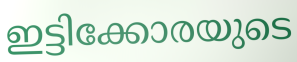
ഇട്ടിക്കോരയുടെ